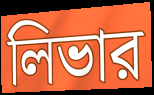
লিভার